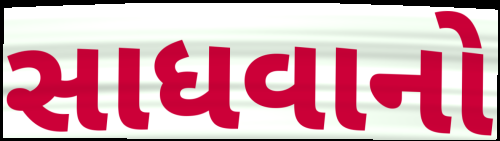
સાધવાનો